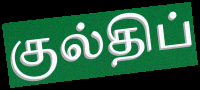
குல்திப்